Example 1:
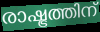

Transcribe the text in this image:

രാഷ്ട്രത്തിന്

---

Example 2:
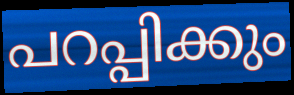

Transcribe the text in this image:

പറപ്പിക്കും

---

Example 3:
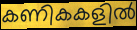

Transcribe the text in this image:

കണികകളിൽ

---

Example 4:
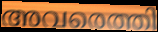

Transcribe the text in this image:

അവരെത്തി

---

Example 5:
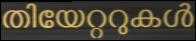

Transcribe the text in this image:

തിയേറ്ററുകൾ